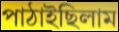
পাঠাইছিলাম